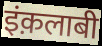
इंक़लाबी